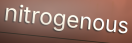
nitrogenous